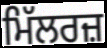
ਮਿੱਲਰਜ਼